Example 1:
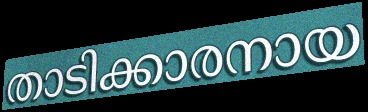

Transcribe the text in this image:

താടിക്കാരനായ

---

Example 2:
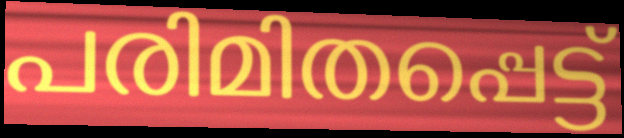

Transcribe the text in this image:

പരിമിതപ്പെട്ട്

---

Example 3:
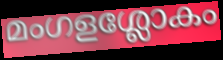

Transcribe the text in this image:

മംഗളശ്ലോകം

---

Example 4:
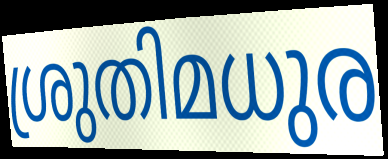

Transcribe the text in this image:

ശ്രുതിമധുര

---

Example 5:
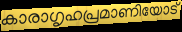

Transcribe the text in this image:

കാരാഗൃഹപ്രമാണിയോട്